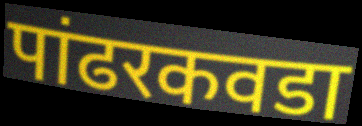
पांढरकवडा